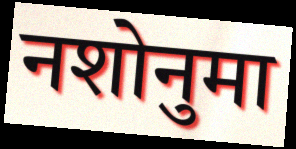
नशोनुमा